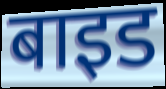
बाइड